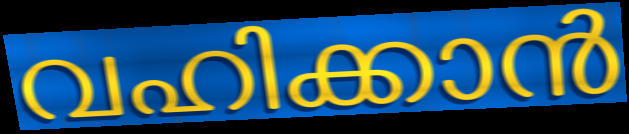
വഹിക്കാൻ